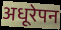
अधूरेपन